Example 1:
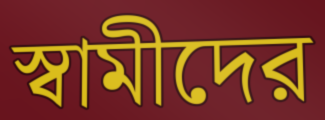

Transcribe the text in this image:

স্বামীদের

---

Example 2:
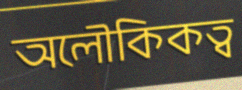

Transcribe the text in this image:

অলৌকিকত্ব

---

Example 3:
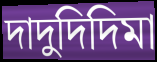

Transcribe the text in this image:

দাদুদিদিমা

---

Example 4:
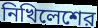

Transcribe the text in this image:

নিখিলেশের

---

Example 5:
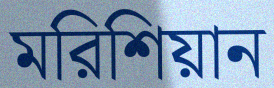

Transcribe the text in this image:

মরিশিয়ান